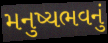
મનુષ્યભવનું